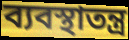
ব্যবস্থাতন্ত্র